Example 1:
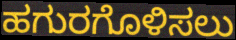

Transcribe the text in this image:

ಹಗುರಗೊಳಿಸಲು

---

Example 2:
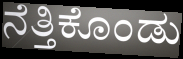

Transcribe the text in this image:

ನೆತ್ತಿಕೊಂಡು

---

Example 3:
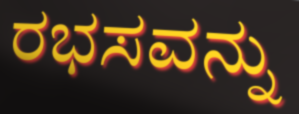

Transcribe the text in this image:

ರಭಸವನ್ನು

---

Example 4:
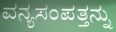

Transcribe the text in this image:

ವನ್ಯಸಂಪತ್ತನ್ನು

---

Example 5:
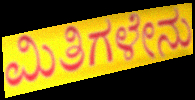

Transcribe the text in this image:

ಮಿತಿಗಳೇನು